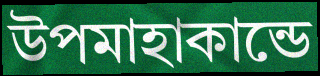
উপমাহাকান্ডে